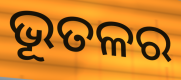
ଭୂତଳର